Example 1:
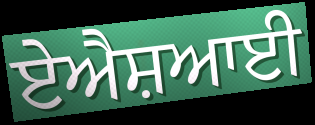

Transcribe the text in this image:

ਏਐਸ਼ਆਈ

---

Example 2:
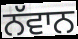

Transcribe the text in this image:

ਨੱਵਾਨ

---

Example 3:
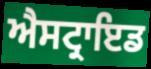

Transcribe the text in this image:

ਐਸਟ੍ਰਾਇਡ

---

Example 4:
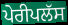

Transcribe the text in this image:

ਪੇਰੀਪਲੱਸ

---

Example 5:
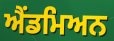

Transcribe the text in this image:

ਐਂਡਮਿਅਨ